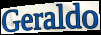
Geraldo